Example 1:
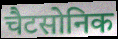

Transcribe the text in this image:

चैटसोनिक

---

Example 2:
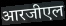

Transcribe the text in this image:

आरजीएल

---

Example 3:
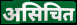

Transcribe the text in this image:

असिचित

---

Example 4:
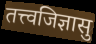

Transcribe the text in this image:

तत्त्वजिज्ञासु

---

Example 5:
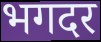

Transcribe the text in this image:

भगदर